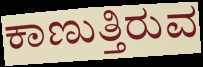
ಕಾಣುತ್ತಿರುವ